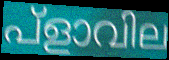
പ്ളാവില